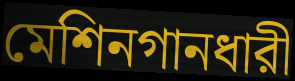
মেশিনগানধারী